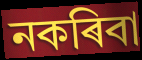
নকৰিবা